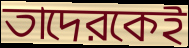
তাদেরকেই